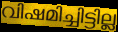
വിഷമിച്ചിട്ടില്ല